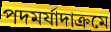
পদমর্যাদাক্রমে